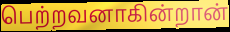
பெற்றவனாகின்றான்